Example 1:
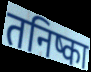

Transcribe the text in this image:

तनिष्का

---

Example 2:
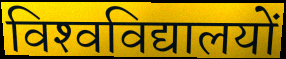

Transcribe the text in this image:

विश्‍वविद्यालयों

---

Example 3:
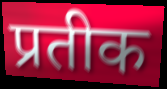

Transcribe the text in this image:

प्रतीक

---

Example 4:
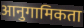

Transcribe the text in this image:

आनुगामिकता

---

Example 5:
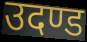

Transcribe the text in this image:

उदण्ड